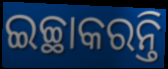
ଇଚ୍ଛାକରନ୍ତି